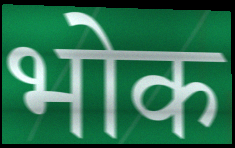
भोक